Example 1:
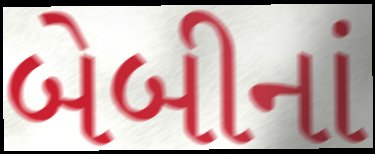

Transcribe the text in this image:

બેબીનાં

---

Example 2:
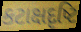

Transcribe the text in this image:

કટાક્ષદૃષ્ટિ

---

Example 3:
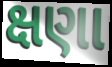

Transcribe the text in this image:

ક્ષણા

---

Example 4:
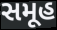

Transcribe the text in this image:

સમૂહ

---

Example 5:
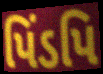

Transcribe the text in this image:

પિંડપિ